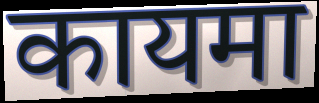
कायमा